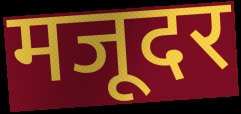
मजूदर